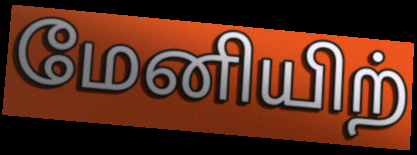
மேனியிற்